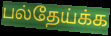
பல்தேய்க்க